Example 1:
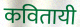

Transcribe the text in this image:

कवितायी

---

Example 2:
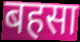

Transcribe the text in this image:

बहसा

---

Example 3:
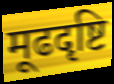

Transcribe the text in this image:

मूढदृष्टि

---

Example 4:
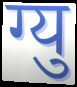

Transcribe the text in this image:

ग्यु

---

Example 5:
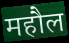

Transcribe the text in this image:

महौल